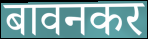
बावनकर